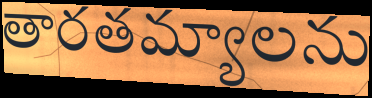
తారతమ్యాలను